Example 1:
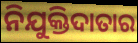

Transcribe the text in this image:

ନିଯୁକ୍ତିଦାତାର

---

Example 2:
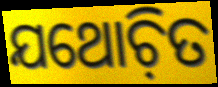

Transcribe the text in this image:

ଯଥୋଚ଼ିତ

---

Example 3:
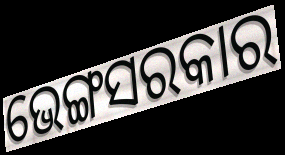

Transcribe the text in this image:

ଭେଙ୍ଗସରକାର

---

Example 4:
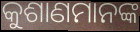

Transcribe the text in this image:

କୁଶାଣମାନଙ୍କ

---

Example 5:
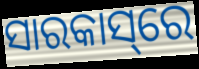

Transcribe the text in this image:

ସାରକାସ୍‌ରେ